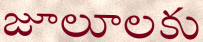
జూలూలకు